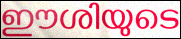
ഈശിയുടെ